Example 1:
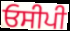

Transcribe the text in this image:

ਓਸੀਪੀ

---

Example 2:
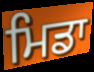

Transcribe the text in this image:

ਮਿਡਾ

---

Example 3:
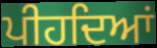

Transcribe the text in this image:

ਪੀਹਦਿਆਂ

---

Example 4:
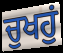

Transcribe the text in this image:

ਚੁਖਹੁਂ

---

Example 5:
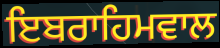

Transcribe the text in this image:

ਇਬਰਾਹਿਮਵਾਲ